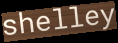
shelley